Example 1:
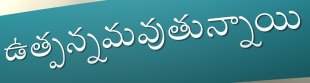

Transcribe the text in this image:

ఉత్పన్నమవుతున్నాయి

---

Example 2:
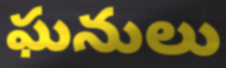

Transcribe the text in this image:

ఘనులు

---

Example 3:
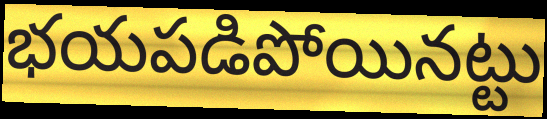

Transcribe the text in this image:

భయపడిపోయినట్టు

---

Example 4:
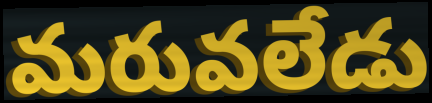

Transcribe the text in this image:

మరువలేడు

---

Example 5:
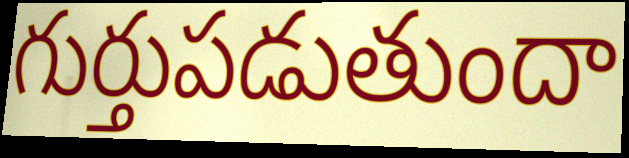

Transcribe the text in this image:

గుర్తుపడుతుందా